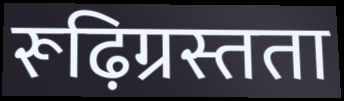
रूढ़िग्रस्तता